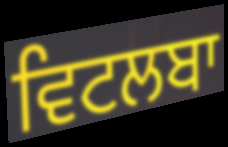
ਵਿਟਲਬਾ